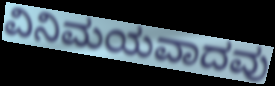
ವಿನಿಮಯವಾದವು